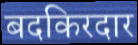
बदकिरदार